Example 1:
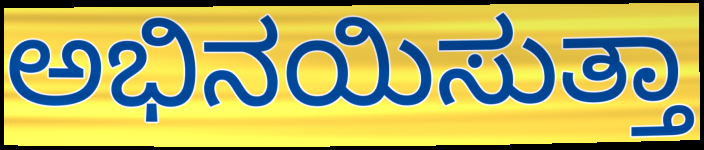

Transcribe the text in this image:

ಅಭಿನಯಿಸುತ್ತಾ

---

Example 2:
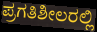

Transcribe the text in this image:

ಪ್ರಗತಿಶೀಲರಲ್ಲಿ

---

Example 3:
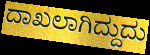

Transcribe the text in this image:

ದಾಖಲಾಗಿದ್ದುದು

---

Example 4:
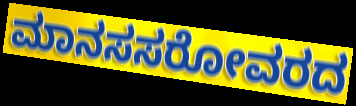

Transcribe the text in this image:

ಮಾನಸಸರೋವರದ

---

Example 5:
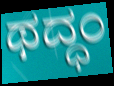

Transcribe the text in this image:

ಥದ್ಧಂ